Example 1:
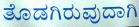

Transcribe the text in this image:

ತೊಡಗಿರುವುದಾಗಿ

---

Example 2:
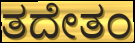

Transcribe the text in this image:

ತದೇತಂ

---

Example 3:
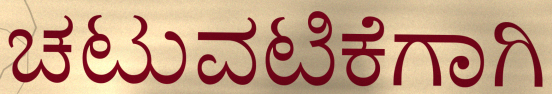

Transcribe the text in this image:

ಚಟುವಟಿಕೆಗಾಗಿ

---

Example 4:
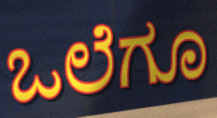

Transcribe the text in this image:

ಒಲೆಗೂ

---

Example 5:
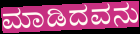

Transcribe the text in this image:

ಮಾಡಿದವನು